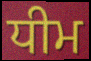
ਧੀਮ